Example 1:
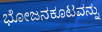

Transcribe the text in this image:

ಭೋಜನಕೂಟವನ್ನು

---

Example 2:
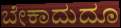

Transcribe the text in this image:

ಬೇಕಾದುದೂ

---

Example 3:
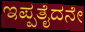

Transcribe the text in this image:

ಇಪ್ಪತೈದನೇ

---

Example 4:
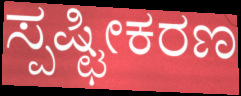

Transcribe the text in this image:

ಸ್ಪಷ್ಟೀಕರಣ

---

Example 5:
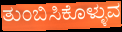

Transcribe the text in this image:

ತುಂಬಿಸಿಕೊಳ್ಳುವ